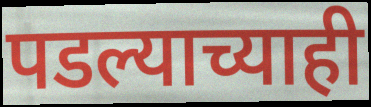
पडल्याच्याही